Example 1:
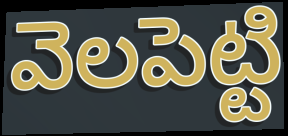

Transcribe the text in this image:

వెలపెట్టి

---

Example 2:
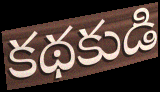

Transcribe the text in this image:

కథకుడి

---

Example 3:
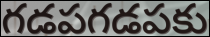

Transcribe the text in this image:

గడపగడపకు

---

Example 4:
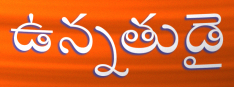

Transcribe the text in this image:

ఉన్నతుడై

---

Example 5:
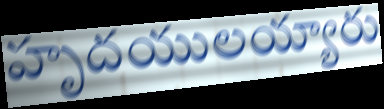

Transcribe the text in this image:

హృదయులయ్యారు